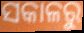
ସକାଳରୁ